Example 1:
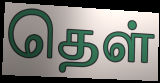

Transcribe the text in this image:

தெள்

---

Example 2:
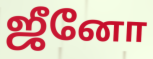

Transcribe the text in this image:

ஜீனோ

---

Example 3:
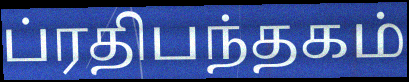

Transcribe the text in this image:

ப்ரதிபந்தகம்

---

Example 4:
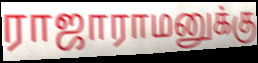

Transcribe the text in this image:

ராஜாராமனுக்கு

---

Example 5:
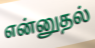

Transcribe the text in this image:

என்னுதல்